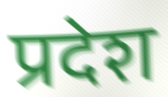
प्रदेश